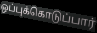
ஒப்புக்கொடுப்பார்